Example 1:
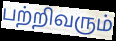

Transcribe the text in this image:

பற்றிவரும்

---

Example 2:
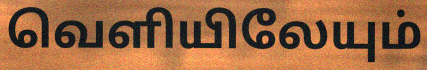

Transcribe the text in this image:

வெளியிலேயும்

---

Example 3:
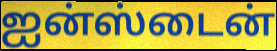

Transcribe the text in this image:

ஐன்ஸ்டைன்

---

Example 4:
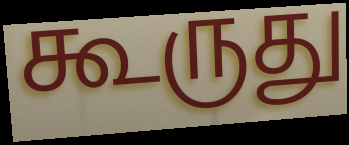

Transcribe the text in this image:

கூருது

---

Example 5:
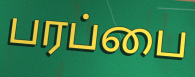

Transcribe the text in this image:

பரப்பை